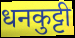
धनकुट्टी